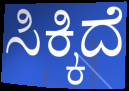
ಸಿಕ್ಕಿದೆ